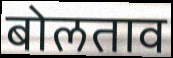
बोलताव